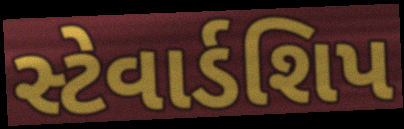
સ્ટેવાર્ડશિપ